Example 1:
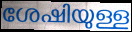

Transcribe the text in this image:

ശേഷിയുള്ള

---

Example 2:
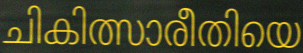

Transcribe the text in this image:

ചികിത്സാരീതിയെ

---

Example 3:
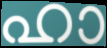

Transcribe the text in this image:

ഹാ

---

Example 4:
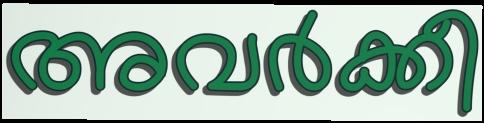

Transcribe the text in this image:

അവർക്കീ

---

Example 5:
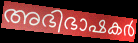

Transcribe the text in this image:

അഭിഭാഷകർ